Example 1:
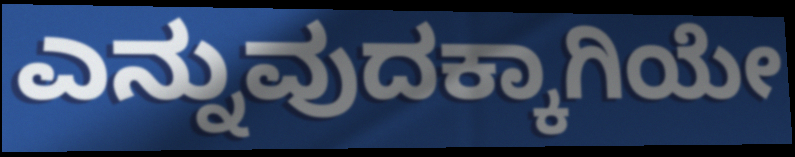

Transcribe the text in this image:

ಎನ್ನುವುದಕ್ಕಾಗಿಯೇ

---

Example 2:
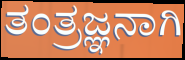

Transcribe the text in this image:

ತಂತ್ರಜ್ಞನಾಗಿ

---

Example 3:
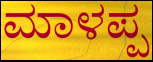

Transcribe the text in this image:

ಮಾಳಪ್ಪ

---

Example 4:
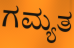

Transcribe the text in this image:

ಗಮ್ಯತ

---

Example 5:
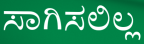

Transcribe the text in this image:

ಸಾಗಿಸಲಿಲ್ಲ